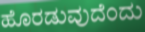
ಹೊರಡುವುದೆಂದು